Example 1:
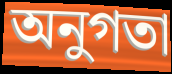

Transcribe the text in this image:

অনুগতা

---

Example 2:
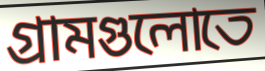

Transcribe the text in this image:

গ্রামগুলোতে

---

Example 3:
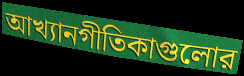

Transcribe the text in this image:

আখ্যানগীতিকাগুলোর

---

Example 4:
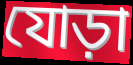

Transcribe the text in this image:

যোড়া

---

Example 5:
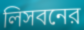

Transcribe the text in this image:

লিসবনের